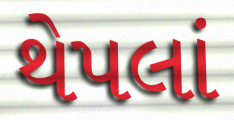
થેપલાં